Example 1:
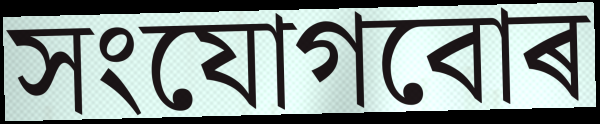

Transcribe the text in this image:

সংযোগবোৰ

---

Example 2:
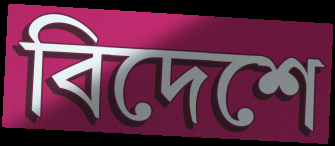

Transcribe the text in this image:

বিদেশে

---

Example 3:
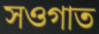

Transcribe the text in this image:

সওগাত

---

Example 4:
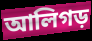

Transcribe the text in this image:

আলিগড়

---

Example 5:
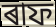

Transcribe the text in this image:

ৰাফ